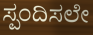
ಸ್ಪಂದಿಸಲೇ